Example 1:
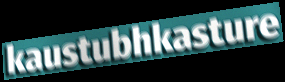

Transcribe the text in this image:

kaustubhkasture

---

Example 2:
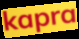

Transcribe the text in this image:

kapra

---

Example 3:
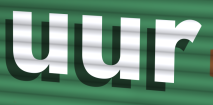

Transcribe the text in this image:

uur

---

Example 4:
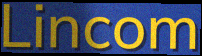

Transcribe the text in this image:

Lincom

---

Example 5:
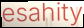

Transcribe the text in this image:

esahity